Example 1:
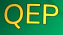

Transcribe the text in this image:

QEP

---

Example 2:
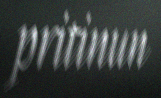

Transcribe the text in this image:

pritinun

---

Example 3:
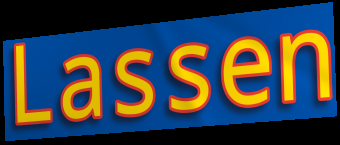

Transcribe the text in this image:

Lassen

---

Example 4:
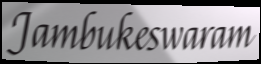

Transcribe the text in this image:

Jambukeswaram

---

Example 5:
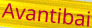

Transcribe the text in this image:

Avantibai